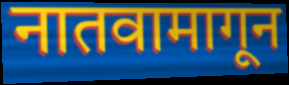
नातवामागून